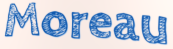
Moreau